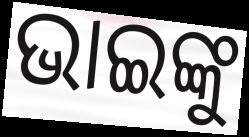
ଭାଇଙ୍କୁ